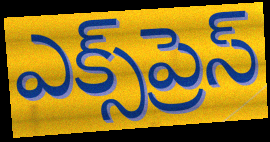
ఎక్స్‌ప్రెస్